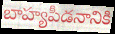
బాహ్యపీడనానికి